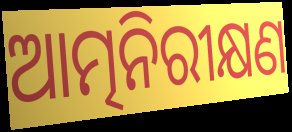
ଆତ୍ମନିରୀକ୍ଷଣ